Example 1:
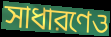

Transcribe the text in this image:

সাধারণেও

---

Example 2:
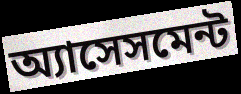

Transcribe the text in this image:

অ্যাসেসমেন্ট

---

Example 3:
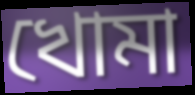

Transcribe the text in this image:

খোমা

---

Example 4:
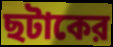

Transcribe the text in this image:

ছটাকের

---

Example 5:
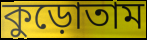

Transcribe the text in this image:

কুড়োতাম